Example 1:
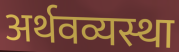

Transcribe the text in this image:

अर्थवव्यस्था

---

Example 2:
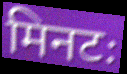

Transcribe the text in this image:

मिनटः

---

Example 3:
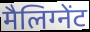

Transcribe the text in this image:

मैलिग्नेंट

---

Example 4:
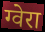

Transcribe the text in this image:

ग्वेरा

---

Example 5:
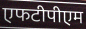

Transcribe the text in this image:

एफटीपीएम